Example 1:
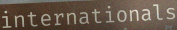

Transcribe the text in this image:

internationals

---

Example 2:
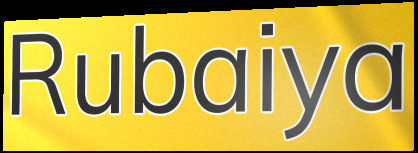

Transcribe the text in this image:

Rubaiya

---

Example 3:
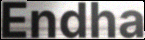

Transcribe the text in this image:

Endha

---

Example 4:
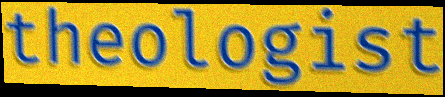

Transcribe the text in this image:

theologist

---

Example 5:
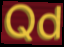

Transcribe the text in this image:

Qd